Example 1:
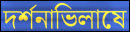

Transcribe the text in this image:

দর্শনাভিলাষে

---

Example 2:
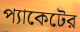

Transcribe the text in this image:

প্যাকেটের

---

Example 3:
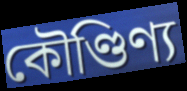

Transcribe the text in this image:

কৌণ্ডিণ্য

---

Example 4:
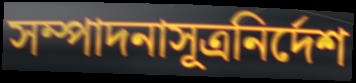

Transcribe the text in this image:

সম্পাদনাসূত্রনির্দেশ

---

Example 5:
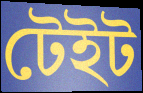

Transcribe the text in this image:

টেইট